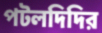
পটলদিদির